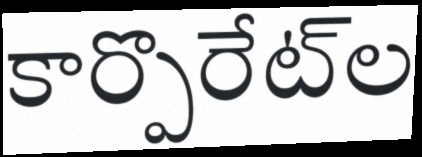
కార్పొరేట్‌ల